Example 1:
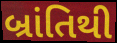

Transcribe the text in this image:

બ્રાંતિથી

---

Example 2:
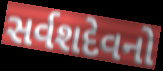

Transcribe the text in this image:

સર્વશદેવનો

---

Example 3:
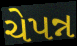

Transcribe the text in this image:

ચેપન્ન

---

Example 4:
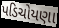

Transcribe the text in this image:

પડિચોયણા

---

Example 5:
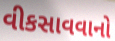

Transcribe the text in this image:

વીકસાવવાનો